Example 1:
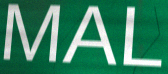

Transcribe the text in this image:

MAL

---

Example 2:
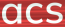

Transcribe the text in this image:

acs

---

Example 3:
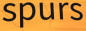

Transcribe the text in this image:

spurs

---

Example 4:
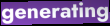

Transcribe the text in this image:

generating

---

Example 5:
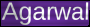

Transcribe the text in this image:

Agarwal